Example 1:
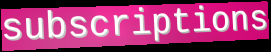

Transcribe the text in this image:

subscriptions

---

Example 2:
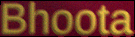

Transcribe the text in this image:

Bhoota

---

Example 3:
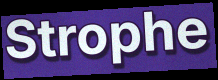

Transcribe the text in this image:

Strophe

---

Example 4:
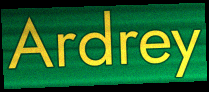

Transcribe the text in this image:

Ardrey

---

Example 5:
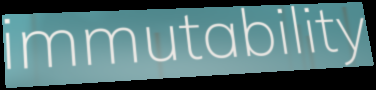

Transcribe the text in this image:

immutability